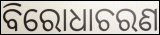
ବିରୋଧାଚରଣ